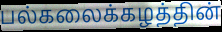
பல்கலைக்கழத்தின்